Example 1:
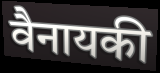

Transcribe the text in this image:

वैनायकी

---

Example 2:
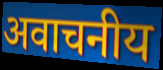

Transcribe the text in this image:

अवाचनीय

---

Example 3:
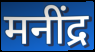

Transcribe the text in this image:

मनींद्र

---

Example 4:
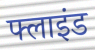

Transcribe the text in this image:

फ्लाइंड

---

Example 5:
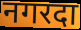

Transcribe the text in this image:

नगरदा